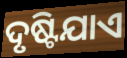
ଦୃଷ୍ଟିଯାଏ